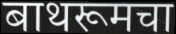
बाथरूमचा